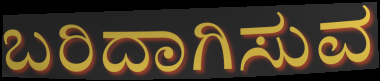
ಬರಿದಾಗಿಸುವ